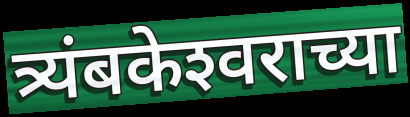
त्र्यंबकेश्‍वराच्या